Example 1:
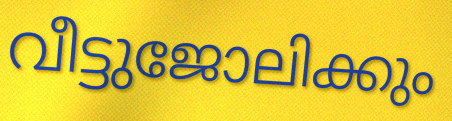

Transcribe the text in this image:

വീട്ടുജോലിക്കും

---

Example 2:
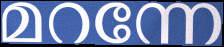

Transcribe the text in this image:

മറന്നേ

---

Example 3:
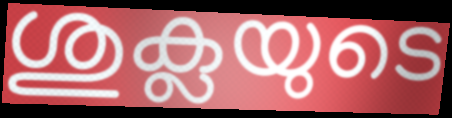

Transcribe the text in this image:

ശുക്ലയുടെ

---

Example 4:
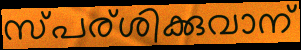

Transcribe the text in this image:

സ്പര്ശിക്കുവാന്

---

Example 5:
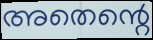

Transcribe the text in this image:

അതെന്റെ